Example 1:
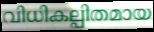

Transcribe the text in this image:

വിധികല്പിതമായ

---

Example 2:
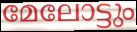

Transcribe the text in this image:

മേലോട്ടും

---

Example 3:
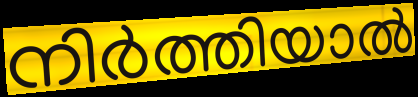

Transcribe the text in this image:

നിർത്തിയാൽ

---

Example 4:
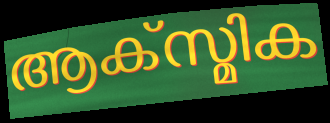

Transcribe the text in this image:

ആക്സ്മിക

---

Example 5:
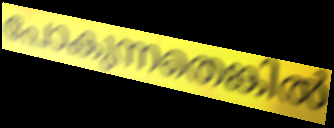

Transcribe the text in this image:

പോകുന്നതെങ്കിൽ